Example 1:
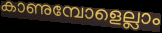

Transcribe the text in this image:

കാണുമ്പോളെല്ലാം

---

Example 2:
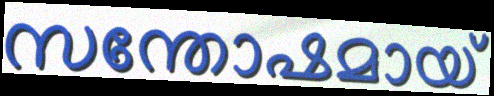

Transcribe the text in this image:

സന്തോഷമായ്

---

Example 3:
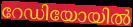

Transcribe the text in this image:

റേഡിയോയിൽ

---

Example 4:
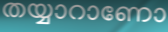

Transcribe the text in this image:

തയ്യാറാണോ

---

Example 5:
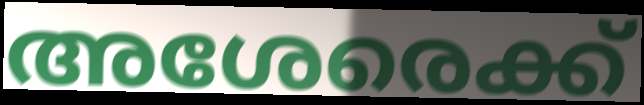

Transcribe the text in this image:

അശേരെക്ക്